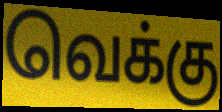
வெக்கு